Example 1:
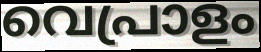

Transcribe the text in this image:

വെപ്രാളം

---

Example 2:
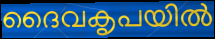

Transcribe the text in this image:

ദൈവകൃപയിൽ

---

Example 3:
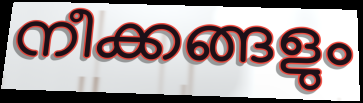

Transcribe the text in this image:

നീക്കങ്ങളും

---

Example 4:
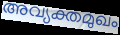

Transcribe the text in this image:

അവ്യക്തമുഖം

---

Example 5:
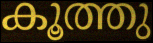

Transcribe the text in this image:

കൂത്തു